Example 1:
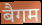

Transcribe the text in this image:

बैगम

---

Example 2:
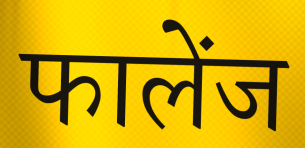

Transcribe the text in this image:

फालेंज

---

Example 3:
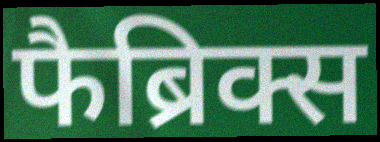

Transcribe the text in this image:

फैब्रिक्स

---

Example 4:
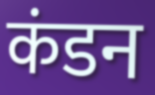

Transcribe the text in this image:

कंडन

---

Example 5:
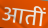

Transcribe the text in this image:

आतीं